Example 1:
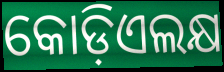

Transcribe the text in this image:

କୋଡ଼ିଏଲକ୍ଷ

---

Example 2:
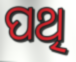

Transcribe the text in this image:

ପଥି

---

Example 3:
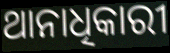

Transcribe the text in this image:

ଥାନାଧିକାରୀ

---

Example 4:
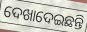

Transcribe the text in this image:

ଦେଖାଦେଇଛନ୍ତି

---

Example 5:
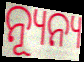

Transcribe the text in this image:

ନ୍ୟୂନ୍ୟ